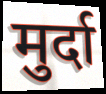
मुर्दा